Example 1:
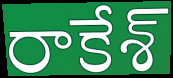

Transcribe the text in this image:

రాకేశ్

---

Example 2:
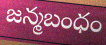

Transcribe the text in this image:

జన్మబంధం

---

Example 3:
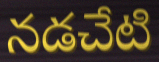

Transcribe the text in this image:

నడచేటి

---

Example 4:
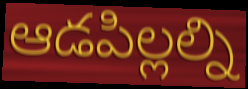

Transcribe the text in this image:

ఆడపిల్లల్ని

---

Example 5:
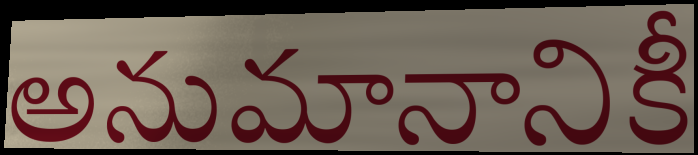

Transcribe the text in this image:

అనుమానానికీ